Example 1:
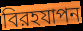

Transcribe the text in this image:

বিরহযাপন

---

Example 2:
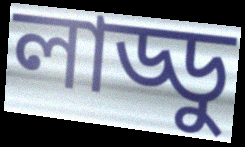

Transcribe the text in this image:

লাড্ডু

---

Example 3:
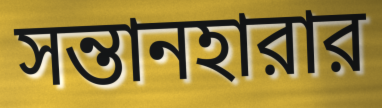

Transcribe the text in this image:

সন্তানহারার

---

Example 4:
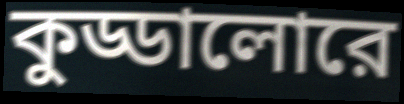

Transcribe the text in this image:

কুড্ডালোরে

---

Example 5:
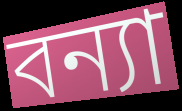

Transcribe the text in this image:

বন্যা